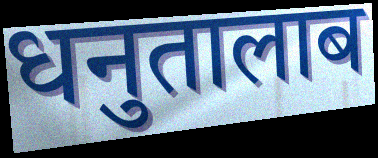
धनुतालाब